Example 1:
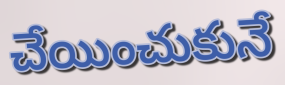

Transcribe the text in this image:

చేయించుకునే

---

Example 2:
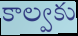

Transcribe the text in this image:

కాల్వకు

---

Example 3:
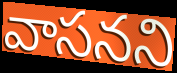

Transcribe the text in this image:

వాసనని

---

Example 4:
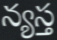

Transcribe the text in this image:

న్యస్త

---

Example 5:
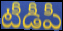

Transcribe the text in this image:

టీడీపీ